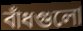
বাঁধগুলো